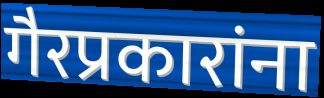
गैरप्रकारांना